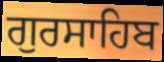
ਗੁਰਸਾਹਿਬ